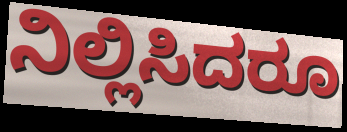
ನಿಲ್ಲಿಸಿದರೂ